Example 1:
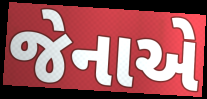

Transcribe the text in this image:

જેનાએ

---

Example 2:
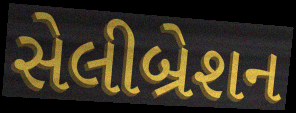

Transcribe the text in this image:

સેલીબ્રેશન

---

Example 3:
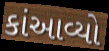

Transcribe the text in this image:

કાંઆવ્યો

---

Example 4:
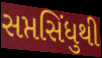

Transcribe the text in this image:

સપ્તસિંધુથી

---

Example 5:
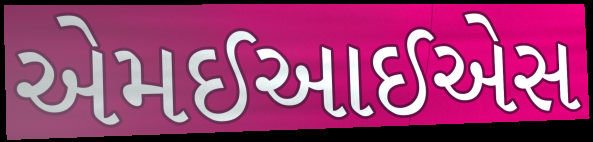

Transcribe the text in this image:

એમઈઆઈએસ